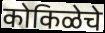
कोकिळेचे